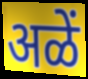
अळें